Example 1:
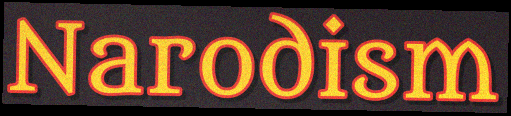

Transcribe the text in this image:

Narodism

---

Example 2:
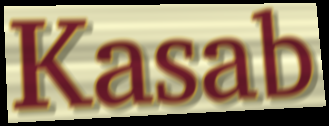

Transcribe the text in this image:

Kasab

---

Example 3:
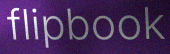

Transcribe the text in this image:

flipbook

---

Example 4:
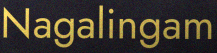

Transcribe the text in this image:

Nagalingam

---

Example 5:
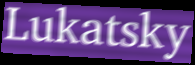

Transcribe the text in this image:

Lukatsky